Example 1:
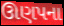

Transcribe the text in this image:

ઊણપના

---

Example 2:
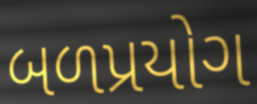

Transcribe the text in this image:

બળપ્રયોગ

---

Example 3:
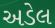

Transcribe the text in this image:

અડેલ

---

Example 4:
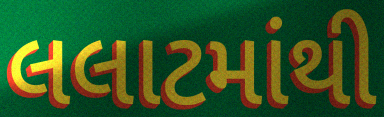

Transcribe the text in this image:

લલાટમાંથી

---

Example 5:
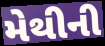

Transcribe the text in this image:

મેથીની